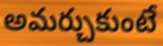
అమర్చుకుంటే